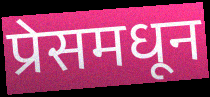
प्रेसमधून